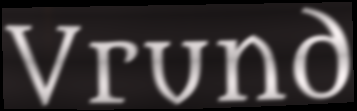
Vrund